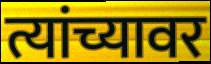
त्यांच्यावर